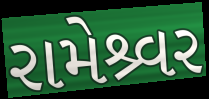
રામેશ્ર્વર